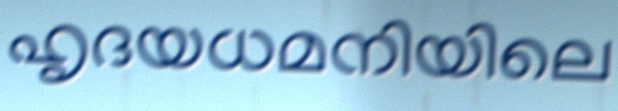
ഹൃദയധമനിയിലെ